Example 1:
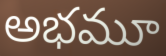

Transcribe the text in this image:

అభమూ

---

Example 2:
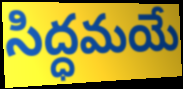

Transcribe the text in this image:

సిద్ధమయే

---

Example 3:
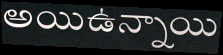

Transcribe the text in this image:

అయిఉన్నాయి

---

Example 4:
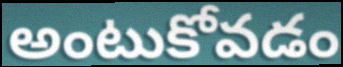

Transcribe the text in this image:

అంటుకోవడం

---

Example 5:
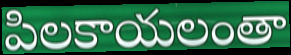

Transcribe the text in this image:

పిలకాయలంతా